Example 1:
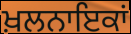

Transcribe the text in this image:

ਖ਼ਲਨਾਇਕਾਂ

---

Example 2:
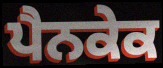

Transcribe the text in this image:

ਪੈਨਕੇਕ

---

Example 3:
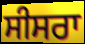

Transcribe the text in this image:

ਸੀਸਰਾ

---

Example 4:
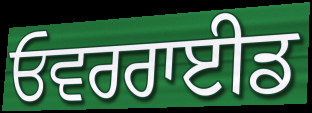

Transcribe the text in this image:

ਓਵਰਰਾਈਡ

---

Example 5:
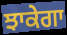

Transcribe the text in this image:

ਝਾਕੇਗਾ